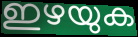
ഇഴയുക